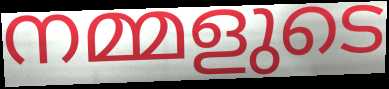
നമ്മളുടെ